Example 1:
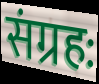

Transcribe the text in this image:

संग्रहः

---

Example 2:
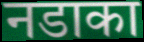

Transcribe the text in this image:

नडाका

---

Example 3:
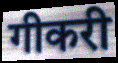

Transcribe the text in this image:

गीकरी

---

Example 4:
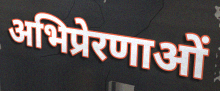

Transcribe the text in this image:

अभिप्रेरणाओं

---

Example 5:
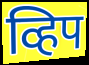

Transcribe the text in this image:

व्हिप